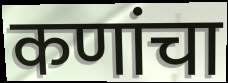
कणांचा